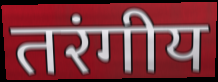
तरंगीय